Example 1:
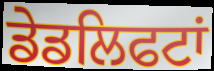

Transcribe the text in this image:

ਡੇਡਲਿਫਟਾਂ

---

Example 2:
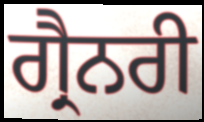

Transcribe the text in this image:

ਗ੍ਰੈਨਰੀ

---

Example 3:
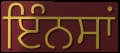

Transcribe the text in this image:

ਇੰਨਸਾਂ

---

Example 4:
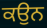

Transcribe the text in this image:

ਕਉਨ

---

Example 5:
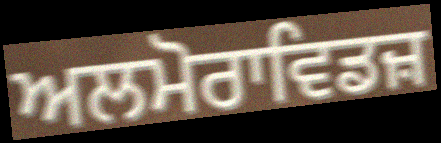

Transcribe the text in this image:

ਅਲਮੋਰਾਵਿਡਜ਼